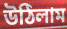
উঠিলাম